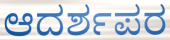
ಆದರ್ಶಪರ